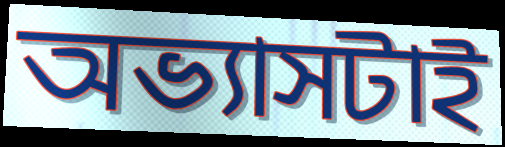
অভ্যাসটাই